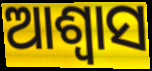
ଆଶ୍ୱାସ